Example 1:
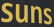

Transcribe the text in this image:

suns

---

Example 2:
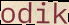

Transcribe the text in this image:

odik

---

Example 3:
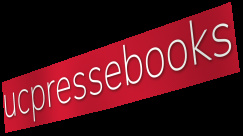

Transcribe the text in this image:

ucpressebooks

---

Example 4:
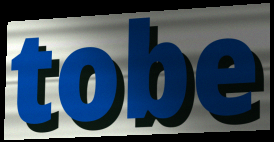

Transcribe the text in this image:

tobe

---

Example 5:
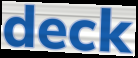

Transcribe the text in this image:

deck